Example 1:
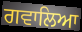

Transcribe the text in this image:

ਗਵਾਲਿਆ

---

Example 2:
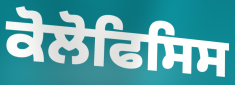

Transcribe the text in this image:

ਕੋਲੋਫਿਸਿਸ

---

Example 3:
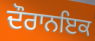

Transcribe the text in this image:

ਦੌਰਾਨਇਕ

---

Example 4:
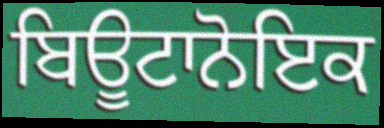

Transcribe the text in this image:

ਬਿਊਟਾਨੋਇਕ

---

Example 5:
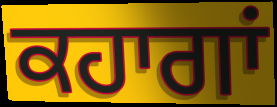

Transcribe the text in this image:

ਕਹਾਗਾਂ